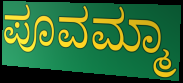
ಪೂವಮ್ಮಾ